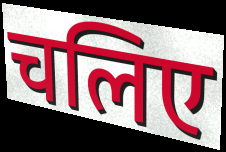
चलिए